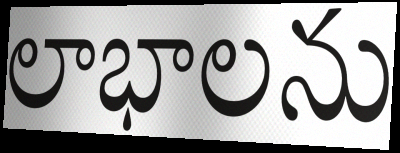
లాభాలను